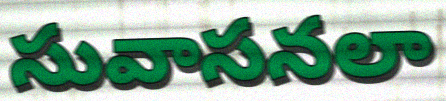
సువాసనలా